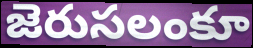
జెరుసలంకూ